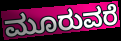
ಮೂರುವರೆ